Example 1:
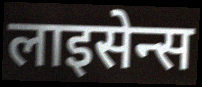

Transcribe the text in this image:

लाइसेन्स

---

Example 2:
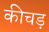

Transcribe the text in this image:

कीचड़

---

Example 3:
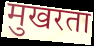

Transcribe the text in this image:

मुखरता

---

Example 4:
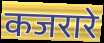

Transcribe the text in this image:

कजरारे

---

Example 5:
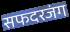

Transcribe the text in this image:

सफदरजंग